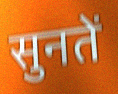
सुनतें